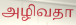
அழிவதா